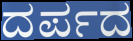
ದರ್ಪದ